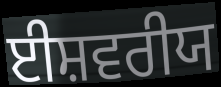
ਈਸ਼ਵਰੀਯ